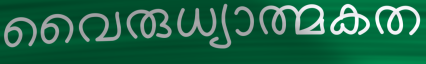
വൈരുധ്യാത്മകത